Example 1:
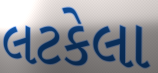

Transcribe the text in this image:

લટકેલા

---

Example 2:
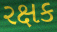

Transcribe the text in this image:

રક્ષક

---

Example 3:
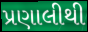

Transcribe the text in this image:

પ્રણાલીથી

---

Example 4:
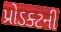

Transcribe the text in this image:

પ્રોડક્ટની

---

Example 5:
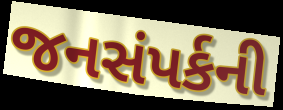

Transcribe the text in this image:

જનસંપર્કની